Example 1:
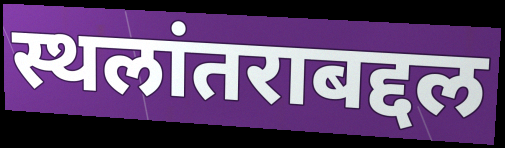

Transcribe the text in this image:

स्थलांतराबद्दल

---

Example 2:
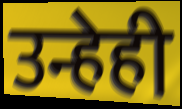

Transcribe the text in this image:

उन्हेही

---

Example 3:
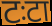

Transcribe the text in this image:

टःटा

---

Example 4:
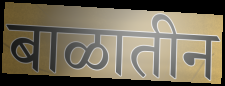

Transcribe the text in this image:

बाळातीन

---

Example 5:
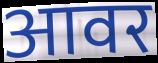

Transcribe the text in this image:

आवर